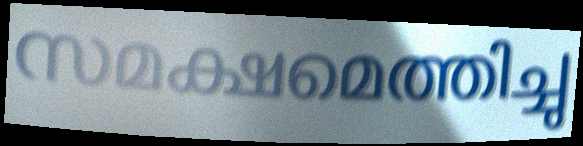
സമക്ഷമെത്തിച്ചു